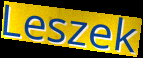
Leszek